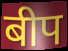
बीप